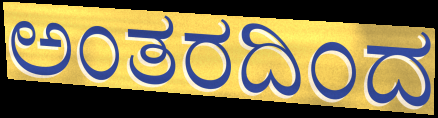
ಅಂತರದಿಂದ